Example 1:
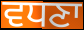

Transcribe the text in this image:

ਵਧਣਾ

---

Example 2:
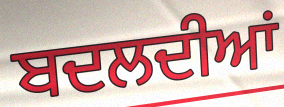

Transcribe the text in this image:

ਬਦਲਦੀਆਂ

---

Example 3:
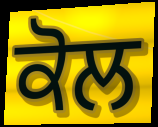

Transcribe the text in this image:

ਕੋਲ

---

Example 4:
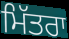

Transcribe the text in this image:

ਮਿੱਤਰਾ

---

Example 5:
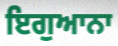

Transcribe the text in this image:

ਇਗੁਆਨਾ